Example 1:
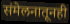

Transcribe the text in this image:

संमेलनातूनही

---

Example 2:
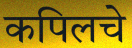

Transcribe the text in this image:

कपिलचे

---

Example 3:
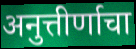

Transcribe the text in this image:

अनुत्तीर्णाचा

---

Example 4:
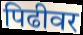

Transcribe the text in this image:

पिढीवर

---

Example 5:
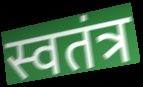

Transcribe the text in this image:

स्वतंत्र